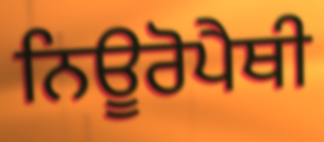
ਨਿਊਰੋਪੈਥੀ